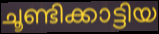
ചൂണ്ടിക്കാട്ടിയ